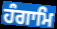
ਹੰਗਾਮਿ